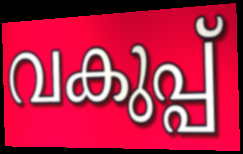
വകുപ്പ്